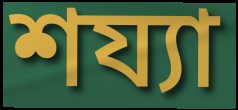
শয্যা